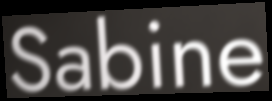
Sabine